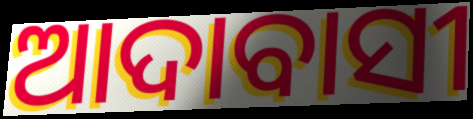
ଆଦାବାସୀ